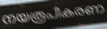
നയരൂപീകരണ